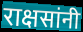
राक्षसांनी